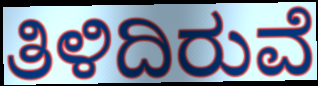
ತಿಳಿದಿರುವೆ